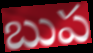
బుప